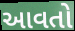
આવતો